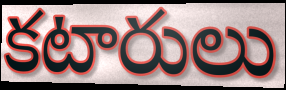
కటారులు